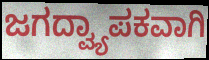
ಜಗದ್ವ್ಯಾಪಕವಾಗಿ